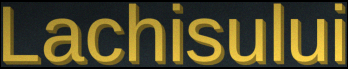
Lachisului